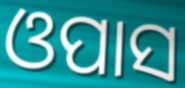
ଓପାସ